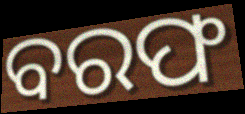
ବରଫ